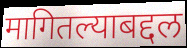
मागितल्याबद्दल